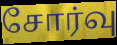
சோர்வு